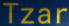
Tzar